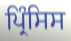
ਪ੍ਰਿੰਸਿਸ